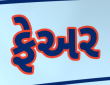
ફેઅર